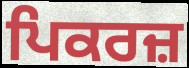
ਪਿਕਰਜ਼